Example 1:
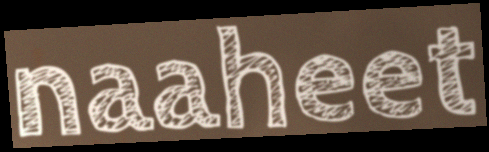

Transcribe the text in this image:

naaheet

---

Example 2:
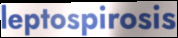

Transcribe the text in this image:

leptospirosis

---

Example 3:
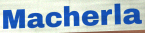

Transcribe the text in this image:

Macherla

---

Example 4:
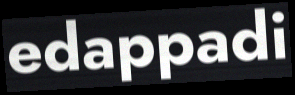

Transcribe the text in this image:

edappadi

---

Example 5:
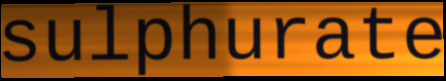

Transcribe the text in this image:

sulphurate